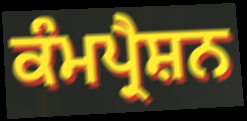
ਕੰਮਪ੍ਰੈਸ਼ਨ